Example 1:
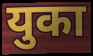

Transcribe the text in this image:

युका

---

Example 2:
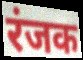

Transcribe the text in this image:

रंजक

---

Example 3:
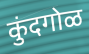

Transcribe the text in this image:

कुंदगोळ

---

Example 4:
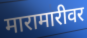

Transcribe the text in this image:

मारामारीवर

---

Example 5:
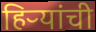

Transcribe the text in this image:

हिऱ्यांची